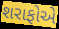
શરાફોએ